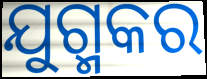
ଯୁଗ୍ମକର